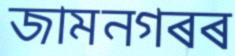
জামনগৰৰ